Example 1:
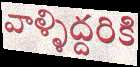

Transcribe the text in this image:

వాళ్ళిద్దరికి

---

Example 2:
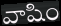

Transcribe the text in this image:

వాషిం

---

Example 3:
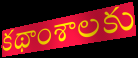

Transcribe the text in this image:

కథాంశాలకు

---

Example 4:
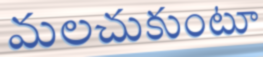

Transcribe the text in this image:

మలచుకుంటూ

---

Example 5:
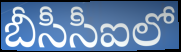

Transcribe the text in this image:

బీసీసీఐలో